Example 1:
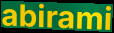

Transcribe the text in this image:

abirami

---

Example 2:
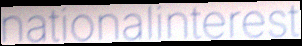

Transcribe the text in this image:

nationalinterest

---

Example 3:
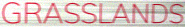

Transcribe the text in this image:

GRASSLANDS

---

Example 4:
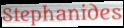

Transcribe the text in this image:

Stephanides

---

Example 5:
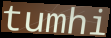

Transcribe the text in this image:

tumhi